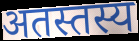
अतस्तस्य